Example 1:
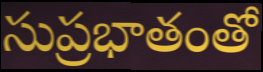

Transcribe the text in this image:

సుప్రభాతంతో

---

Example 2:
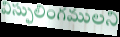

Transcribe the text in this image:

విస్ఫులింగములని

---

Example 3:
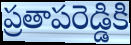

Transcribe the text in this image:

ప్రతాపరెడ్డికి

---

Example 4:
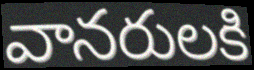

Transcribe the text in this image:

వానరులకి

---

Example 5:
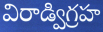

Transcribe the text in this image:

విరాడ్విగ్రహ